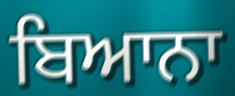
ਬਿਆਨਾ